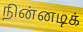
நின்னடிக்